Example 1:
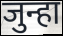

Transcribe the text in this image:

जुन्हा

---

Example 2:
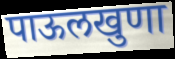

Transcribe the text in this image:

पाऊलखुणा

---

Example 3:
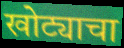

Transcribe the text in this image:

खोट्याचा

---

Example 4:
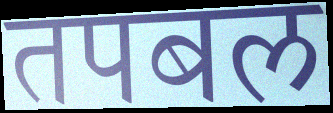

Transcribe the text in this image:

तपबल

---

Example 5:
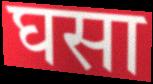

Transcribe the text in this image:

घसा